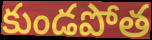
కుండపోత